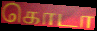
கொடா